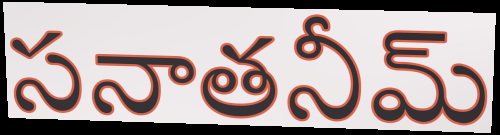
సనాతనీమ్